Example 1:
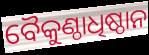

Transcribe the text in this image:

ବୈକୁଣ୍ଠାଧିଷ୍ଠାନ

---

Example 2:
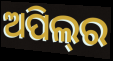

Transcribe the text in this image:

ଅପିଲ୍‌ର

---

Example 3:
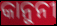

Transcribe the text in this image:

କାନୁନୀ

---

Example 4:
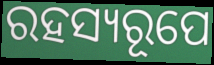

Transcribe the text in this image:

ରହସ୍ୟରୂପେ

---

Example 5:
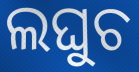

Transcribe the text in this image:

ଲଘୁଚ